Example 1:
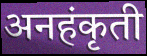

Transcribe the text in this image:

अनहंकृती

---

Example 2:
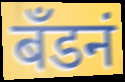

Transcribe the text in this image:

बँडनं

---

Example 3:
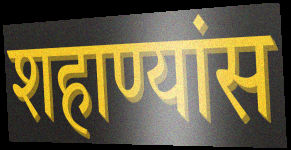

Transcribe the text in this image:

शहाण्यांस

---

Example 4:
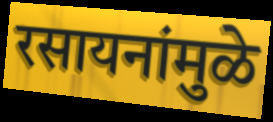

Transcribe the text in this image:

रसायनांमुळे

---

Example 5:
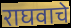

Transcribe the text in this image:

राघवाचे